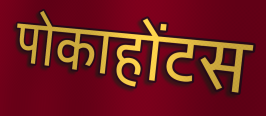
पोकाहोंटस